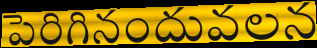
పెరిగినందువలన